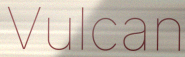
Vulcan